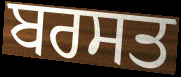
ਬਰਸਤ